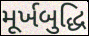
મૂર્ખબુદ્ધિ